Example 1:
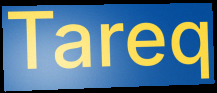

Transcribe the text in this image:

Tareq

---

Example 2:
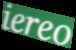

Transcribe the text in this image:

iereo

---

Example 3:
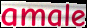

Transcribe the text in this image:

amale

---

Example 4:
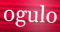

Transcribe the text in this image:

ogulo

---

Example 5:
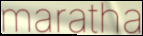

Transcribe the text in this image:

maratha